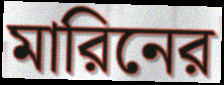
মারিনের